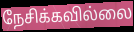
நேசிக்கவில்லை